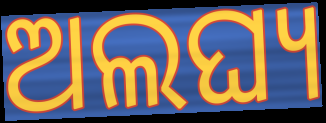
ଅଲଘ୍ୟ